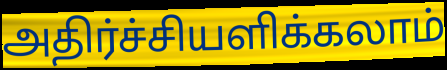
அதிர்ச்சியளிக்கலாம்